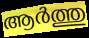
ആർത്തു